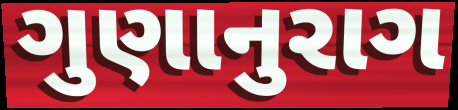
ગુણાનુરાગ